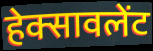
हेक्सावलेंट